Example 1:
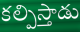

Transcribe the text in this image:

కల్పిస్తాడు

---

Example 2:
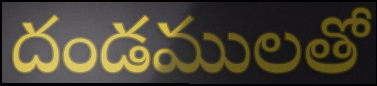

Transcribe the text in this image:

దండములతో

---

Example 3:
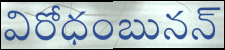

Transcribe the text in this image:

విరోధంబునన్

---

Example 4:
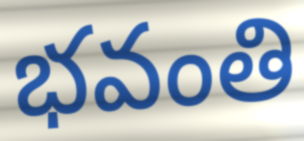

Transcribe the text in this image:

భవంతి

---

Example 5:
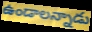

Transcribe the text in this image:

ఉండాలన్నాడు